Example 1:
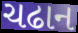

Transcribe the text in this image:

ચઢાન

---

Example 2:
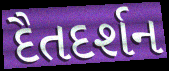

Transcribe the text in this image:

દૈતદર્શન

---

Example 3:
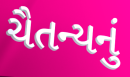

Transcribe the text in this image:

ચૈતન્યનું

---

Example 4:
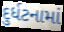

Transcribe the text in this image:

દુર્ધટનામાં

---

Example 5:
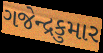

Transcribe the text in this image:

ગજેન્દ્રકુમાર